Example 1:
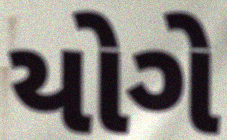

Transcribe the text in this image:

યોગે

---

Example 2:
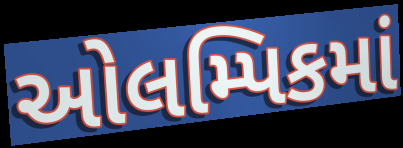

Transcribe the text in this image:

ઓલમ્પિકમાં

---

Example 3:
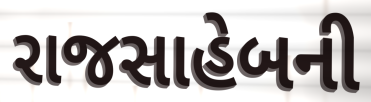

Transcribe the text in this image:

રાજસાહેબની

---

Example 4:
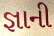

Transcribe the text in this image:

જ્ઞાની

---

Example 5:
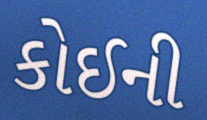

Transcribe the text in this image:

કોઈની